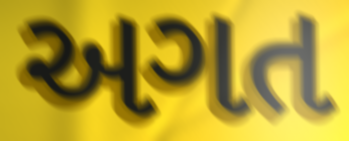
અગત